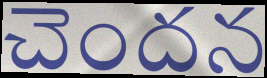
చెందన